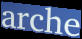
arche